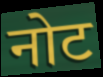
नोट